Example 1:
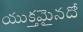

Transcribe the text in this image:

యుక్తమైనదో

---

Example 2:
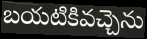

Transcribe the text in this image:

బయటికివచ్చెను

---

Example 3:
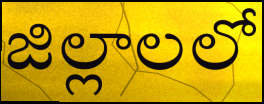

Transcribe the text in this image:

జిల్లాలలో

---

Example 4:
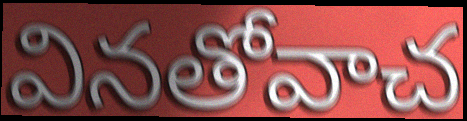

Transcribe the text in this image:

వినతోవాచ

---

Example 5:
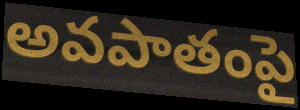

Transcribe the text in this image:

అవపాతంపై